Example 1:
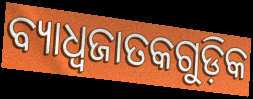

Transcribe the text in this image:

ବ୍ୟାଧ୍ଵଜାତକଗୁଡ଼ିକ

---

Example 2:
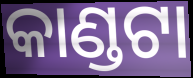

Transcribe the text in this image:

କାଣ୍ଡଟା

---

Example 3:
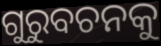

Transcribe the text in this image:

ଗୁରୁବଚନକୁ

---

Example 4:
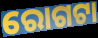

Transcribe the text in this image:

ରୋଗଟା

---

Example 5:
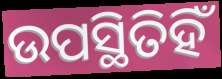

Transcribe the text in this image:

ଉପସ୍ଥିତିହିଁ